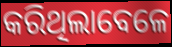
କରିଥିଲାବେଳେ